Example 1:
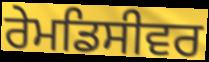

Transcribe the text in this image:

ਰੇਮਡਿਸੀਵਰ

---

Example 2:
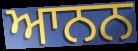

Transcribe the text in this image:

ਆਨਨ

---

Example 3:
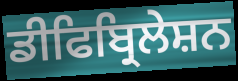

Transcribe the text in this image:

ਡੀਫਿਬ੍ਰਿਲੇਸ਼ਨ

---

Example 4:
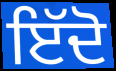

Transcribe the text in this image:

ਇੱਦੋ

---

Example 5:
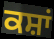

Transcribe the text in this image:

ਕਸ਼ਾਂ